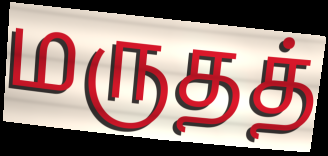
மருதத்